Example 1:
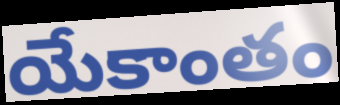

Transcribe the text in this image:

యేకాంతం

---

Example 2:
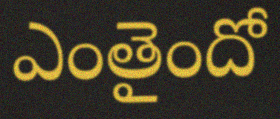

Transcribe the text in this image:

ఎంతైందో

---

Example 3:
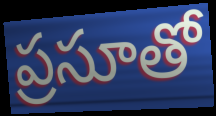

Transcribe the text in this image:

ప్రసూతో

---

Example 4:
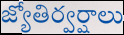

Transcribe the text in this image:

జ్యోతిర్వర్షాలు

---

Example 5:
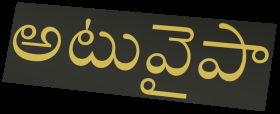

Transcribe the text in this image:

అటువైపా